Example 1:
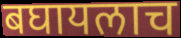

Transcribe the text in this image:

बघायलाच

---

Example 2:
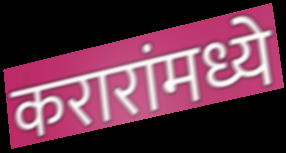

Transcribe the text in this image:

करारांमध्ये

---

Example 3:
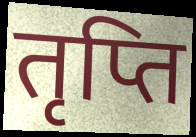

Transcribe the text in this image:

तृप्ति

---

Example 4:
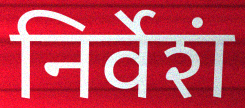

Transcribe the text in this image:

निर्वेशं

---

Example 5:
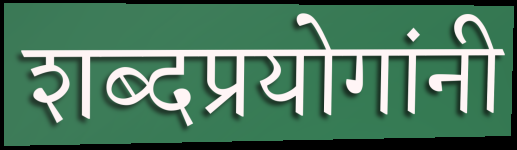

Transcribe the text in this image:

शब्दप्रयोगांनी